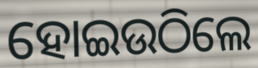
ହୋଇଉଠିଲେ